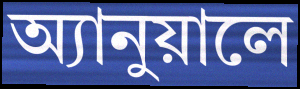
অ্যানুয়ালে